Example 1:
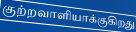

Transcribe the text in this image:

குற்றவாளியாக்குகிறது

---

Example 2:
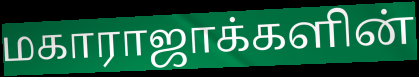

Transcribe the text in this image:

மகாராஜாக்களின்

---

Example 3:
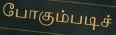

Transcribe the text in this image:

போகும்படிச்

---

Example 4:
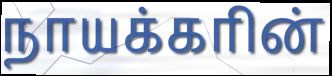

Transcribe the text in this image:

நாயக்கரின்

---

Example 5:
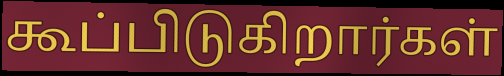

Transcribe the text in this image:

கூப்பிடுகிறார்கள்